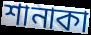
শানাকা